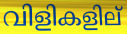
വിളികളില്